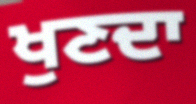
ਖੁਣਦਾ